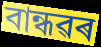
বান্ধৱৰ